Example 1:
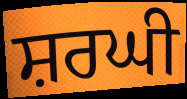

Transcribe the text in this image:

ਸ਼ਰਘੀ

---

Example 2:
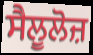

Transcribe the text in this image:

ਸੈਲੂਲੋਜ਼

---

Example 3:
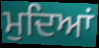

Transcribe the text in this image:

ਮੁਦਿਆਂ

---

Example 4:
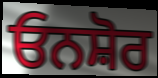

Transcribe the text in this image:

ਓਨਸ਼ੋਰ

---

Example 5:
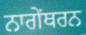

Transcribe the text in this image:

ਨਾਗੇਂਥਰਨ